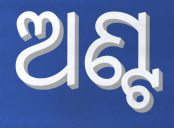
ଅଣ୍ଟ